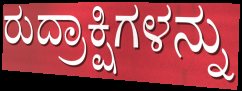
ರುದ್ರಾಕ್ಷಿಗಳನ್ನು